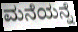
ಮನೆಯನ್ನೆ